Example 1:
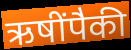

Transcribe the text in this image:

ऋषींपैकी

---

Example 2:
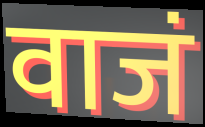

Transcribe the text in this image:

वाजं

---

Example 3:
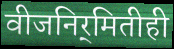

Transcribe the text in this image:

वीजनिर्मितीही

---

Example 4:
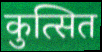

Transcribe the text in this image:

कुत्सित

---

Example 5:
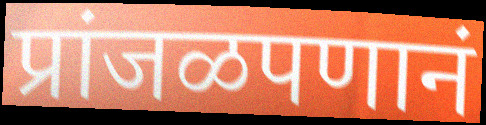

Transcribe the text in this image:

प्रांजळपणानं